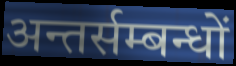
अन्तर्सम्बन्धों